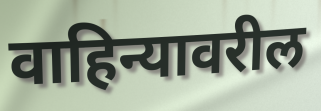
वाहिन्यावरील